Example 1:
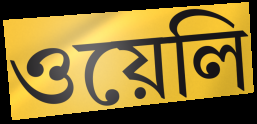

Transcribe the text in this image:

ওয়েলি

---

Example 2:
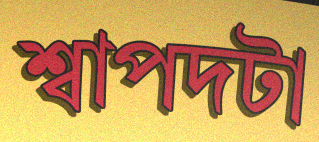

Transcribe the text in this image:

শ্বাপদটা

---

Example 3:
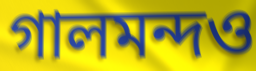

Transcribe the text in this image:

গালমন্দও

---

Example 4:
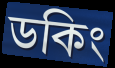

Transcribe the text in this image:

ডকিং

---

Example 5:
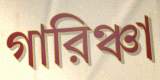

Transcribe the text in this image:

গারিঞ্চা